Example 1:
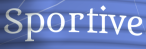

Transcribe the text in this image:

Sportive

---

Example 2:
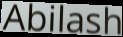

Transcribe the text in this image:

Abilash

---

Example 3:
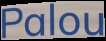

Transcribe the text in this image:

Palou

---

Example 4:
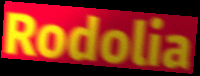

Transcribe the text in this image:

Rodolia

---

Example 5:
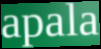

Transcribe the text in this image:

apala